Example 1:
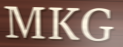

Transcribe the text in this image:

MKG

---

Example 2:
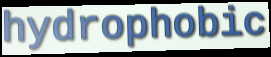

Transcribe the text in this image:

hydrophobic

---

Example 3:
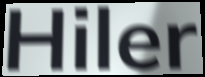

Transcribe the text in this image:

Hiler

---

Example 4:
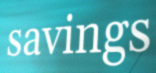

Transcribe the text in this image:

savings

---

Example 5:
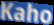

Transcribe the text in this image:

Kaho